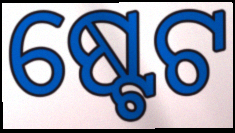
ଷ୍ଟେଟ